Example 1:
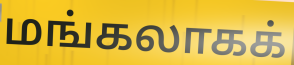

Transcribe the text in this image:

மங்கலாகக்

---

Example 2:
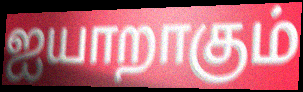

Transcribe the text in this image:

ஐயாறாகும்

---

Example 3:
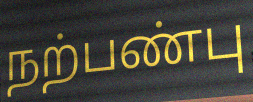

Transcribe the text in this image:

நற்பண்பு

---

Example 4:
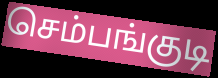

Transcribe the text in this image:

செம்பங்குடி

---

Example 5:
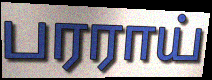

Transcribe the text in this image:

பரராய்